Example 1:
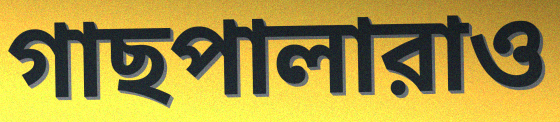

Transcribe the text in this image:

গাছপালারাও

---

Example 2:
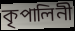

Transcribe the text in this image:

কৃপালিনী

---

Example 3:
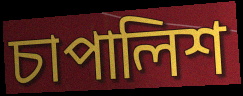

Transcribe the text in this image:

চাপালিশ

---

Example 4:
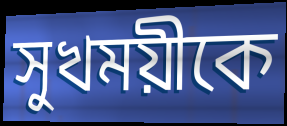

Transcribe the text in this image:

সুখময়ীকে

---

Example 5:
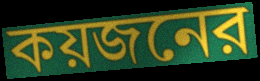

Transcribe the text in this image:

কয়জনের